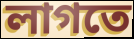
লাগতে